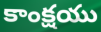
కాంక్షయు